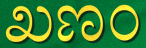
ಖಣಂ